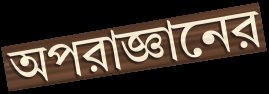
অপরাজ্ঞানের